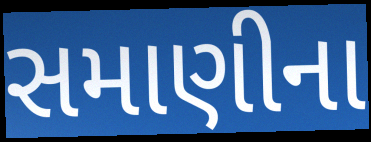
સમાણીના